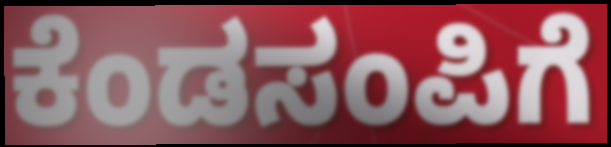
ಕೆಂಡಸಂಪಿಗೆ